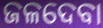
ଜଳଦେବା